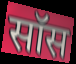
सॉस